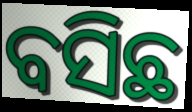
ବସିଛ